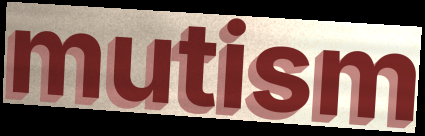
mutism